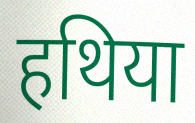
हथिया